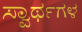
ಸ್ವಾರ್ಥಗಳ